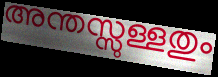
അന്തസ്സുള്ളതും